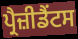
ਪ੍ਰੈਜ਼ੀਡੈਂਟਸ